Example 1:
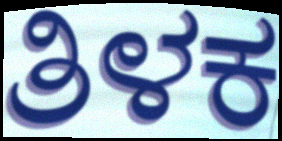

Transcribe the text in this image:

ತಿಳಕ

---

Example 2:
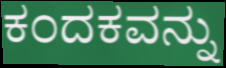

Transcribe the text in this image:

ಕಂದಕವನ್ನು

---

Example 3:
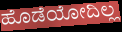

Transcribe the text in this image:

ಹೊಡೆಯೋದಿಲ್ಲ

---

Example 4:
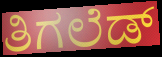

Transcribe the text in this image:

ತಿಗಲೆಡ್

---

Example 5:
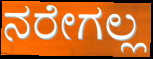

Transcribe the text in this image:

ನರೇಗಲ್ಲ